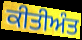
ਕੀਤੀਅੰਤ